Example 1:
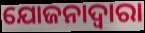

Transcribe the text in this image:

ଯୋଜନାଦ୍ବାରା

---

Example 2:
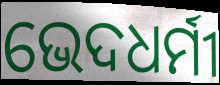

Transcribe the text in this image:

ଭେଦଧର୍ମୀ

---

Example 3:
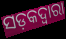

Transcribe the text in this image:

ସଡ଼କଦ୍ୱାରା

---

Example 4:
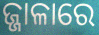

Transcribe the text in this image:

ଜ୍ଜାଳାରେ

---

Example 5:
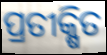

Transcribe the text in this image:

ପ୍ରତୀକ୍ଷିତ